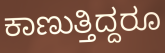
ಕಾಣುತ್ತಿದ್ದರೂ